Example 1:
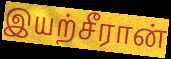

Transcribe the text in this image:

இயற்சீரான்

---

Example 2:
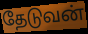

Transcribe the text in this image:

தேடுவன்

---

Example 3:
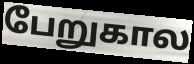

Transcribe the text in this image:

பேறுகால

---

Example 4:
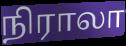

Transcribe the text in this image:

நிராலா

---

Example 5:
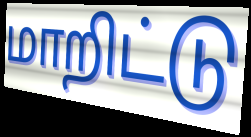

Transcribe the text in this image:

மாறிட்டு